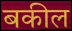
बकील